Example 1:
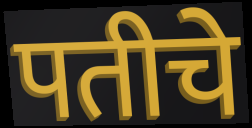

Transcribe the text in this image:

पतीचे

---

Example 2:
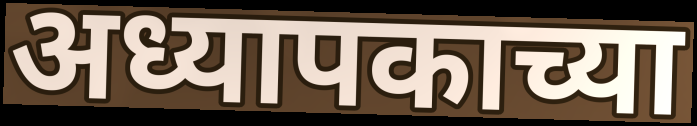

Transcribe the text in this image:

अध्यापकाच्या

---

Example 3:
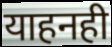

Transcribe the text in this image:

याहनही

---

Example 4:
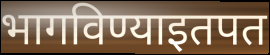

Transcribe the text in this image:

भागविण्याइतपत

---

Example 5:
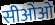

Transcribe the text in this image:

सीओओ